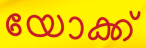
യോക്ക്